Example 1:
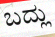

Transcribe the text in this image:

ಬದ್ಲು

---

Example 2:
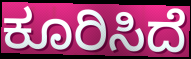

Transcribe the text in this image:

ಕೂರಿಸಿದೆ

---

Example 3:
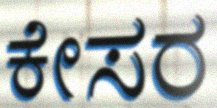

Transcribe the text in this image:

ಕೇಸರ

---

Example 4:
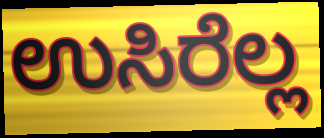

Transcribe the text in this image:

ಉಸಿರೆಲ್ಲ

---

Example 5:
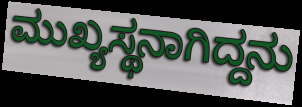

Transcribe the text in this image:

ಮುಖ್ಯಸ್ಥನಾಗಿದ್ದನು